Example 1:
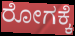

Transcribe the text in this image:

ರೋಗಕ್ಕೆ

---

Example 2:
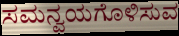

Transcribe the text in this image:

ಸಮನ್ವಯಗೊಳಿಸುವ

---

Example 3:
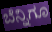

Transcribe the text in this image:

ಬೆನ್ನಿಗೂ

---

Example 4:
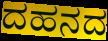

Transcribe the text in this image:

ದಹನದ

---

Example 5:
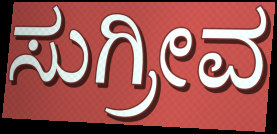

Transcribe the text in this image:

ಸುಗ್ರೀವ